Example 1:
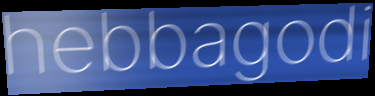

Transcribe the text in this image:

hebbagodi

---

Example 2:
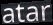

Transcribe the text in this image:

atar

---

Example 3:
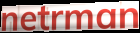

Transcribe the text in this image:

netrman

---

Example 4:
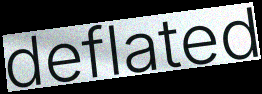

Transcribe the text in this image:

deflated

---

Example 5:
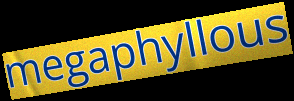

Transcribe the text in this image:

megaphyllous